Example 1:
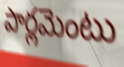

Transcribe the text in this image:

పార్లమెంటు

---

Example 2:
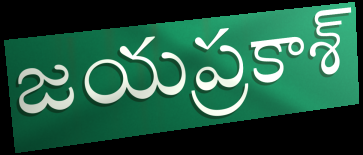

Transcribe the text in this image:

జయప్రకాశ్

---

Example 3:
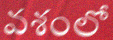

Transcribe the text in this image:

వశంలో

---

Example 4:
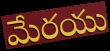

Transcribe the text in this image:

మేరయు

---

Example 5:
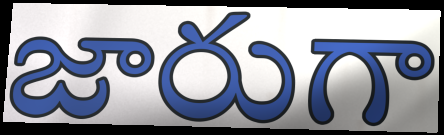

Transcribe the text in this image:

జారుగా